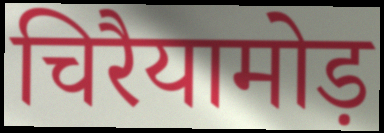
चिरैयामोड़